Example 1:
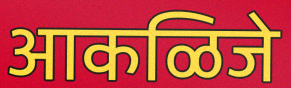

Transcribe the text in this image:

आकळिजे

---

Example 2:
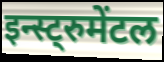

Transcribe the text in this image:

इन्स्ट्रुमेंटल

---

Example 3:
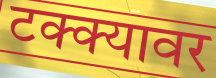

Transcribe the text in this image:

टक्क्यावर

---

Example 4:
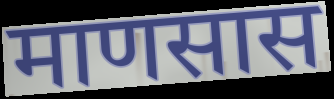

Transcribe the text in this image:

माणसास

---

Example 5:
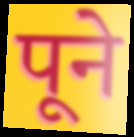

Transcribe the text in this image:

पूने